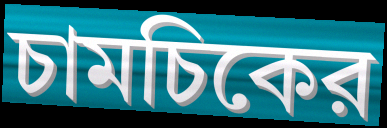
চামচিকের